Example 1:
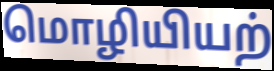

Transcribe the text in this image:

மொழியியற்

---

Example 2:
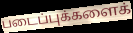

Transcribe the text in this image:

படைப்புக்களைக்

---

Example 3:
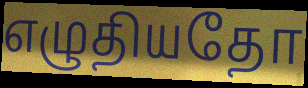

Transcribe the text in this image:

எழுதியதோ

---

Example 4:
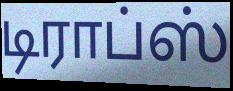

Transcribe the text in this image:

டிராப்ஸ்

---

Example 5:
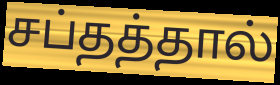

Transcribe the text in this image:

சப்தத்தால்